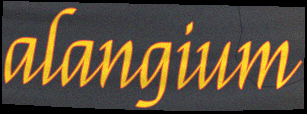
alangium